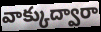
వాక్కుద్వారా